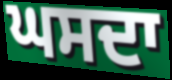
ਘਸਦਾ